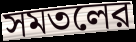
সমতলের